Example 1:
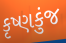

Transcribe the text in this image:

કૃષ્ણકુંજ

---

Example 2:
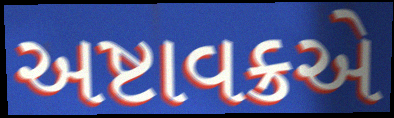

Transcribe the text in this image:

અષ્ટાવક્રએ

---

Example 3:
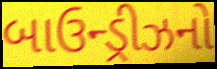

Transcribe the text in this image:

બાઉન્ડ્રીઝનો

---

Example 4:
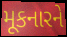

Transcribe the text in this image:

મૂકનારને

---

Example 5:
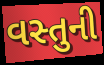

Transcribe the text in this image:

વસ્તુની